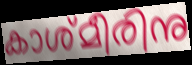
കാശ്മീരിനു